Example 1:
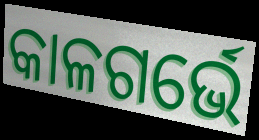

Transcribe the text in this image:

କାଳଗର୍ଭେ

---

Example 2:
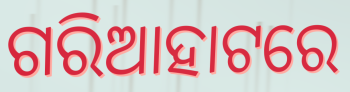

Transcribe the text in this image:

ଗରିଆହାଟରେ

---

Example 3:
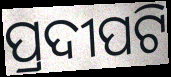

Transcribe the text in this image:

ପ୍ରଦୀପଟି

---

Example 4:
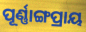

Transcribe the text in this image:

ପୂର୍ଣ୍ଣାଙ୍ଗପ୍ରାୟ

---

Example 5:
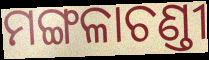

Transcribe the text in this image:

ମଙ୍ଗଳାଚଣ୍ଡୀ